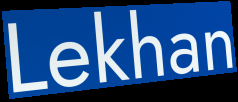
Lekhan